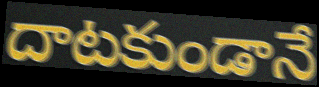
దాటకుండానే